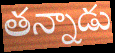
తన్నాడు